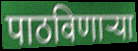
पाठविणाऱ्या